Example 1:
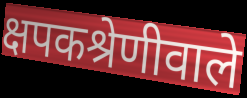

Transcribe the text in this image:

क्षपकश्रेणीवाले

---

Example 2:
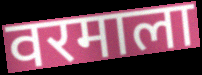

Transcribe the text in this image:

वरमाला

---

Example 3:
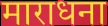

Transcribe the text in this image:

माराधना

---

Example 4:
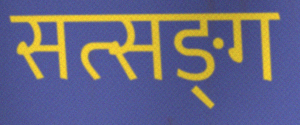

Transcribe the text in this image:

सत्सङ्ग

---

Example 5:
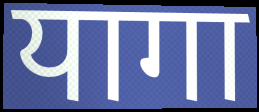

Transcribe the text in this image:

यागा